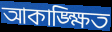
আকাঙ্ক্ষিত